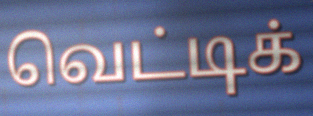
வெட்டிக்